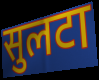
सुलटा